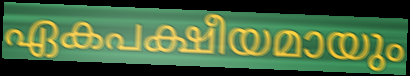
ഏകപക്ഷീയമായും